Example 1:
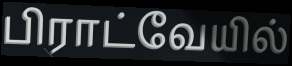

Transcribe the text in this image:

பிராட்வேயில்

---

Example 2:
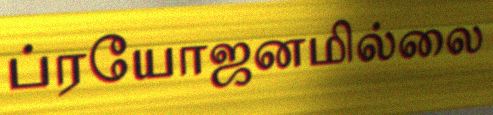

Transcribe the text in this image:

ப்ரயோஜனமில்லை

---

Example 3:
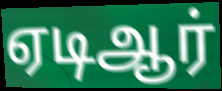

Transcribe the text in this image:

ஏடிஆர்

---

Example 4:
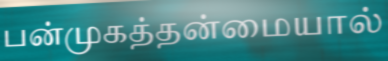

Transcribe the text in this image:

பன்முகத்தன்மையால்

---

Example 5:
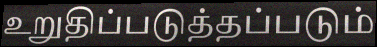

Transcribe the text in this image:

உறுதிப்படுத்தப்படும்